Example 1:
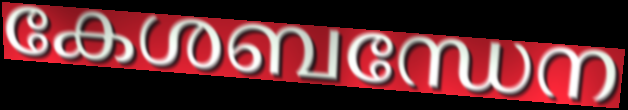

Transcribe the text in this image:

കേശബന്ധേന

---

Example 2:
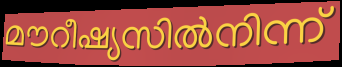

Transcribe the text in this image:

മൗറീഷ്യസിൽനിന്ന്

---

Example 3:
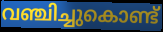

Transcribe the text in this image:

വഞ്ചിച്ചുകൊണ്ട്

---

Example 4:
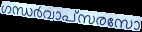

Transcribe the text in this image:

ഗന്ധർവാപ്സരസോ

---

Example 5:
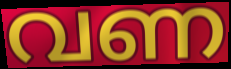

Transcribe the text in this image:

വണ